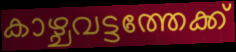
കാഴ്ചവട്ടത്തേക്ക്